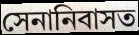
সেনানিবাসত